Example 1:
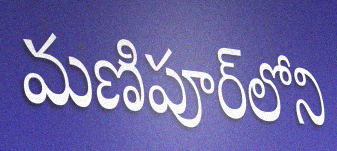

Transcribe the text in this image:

మణిపూర్‌లోని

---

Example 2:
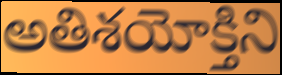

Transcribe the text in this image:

అతిశయోక్తిని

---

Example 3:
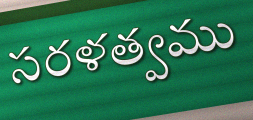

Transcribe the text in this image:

సరళత్వము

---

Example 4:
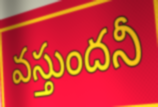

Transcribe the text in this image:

వస్తుందనీ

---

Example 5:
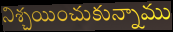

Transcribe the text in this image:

నిశ్చయించుకున్నాము